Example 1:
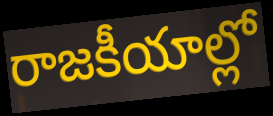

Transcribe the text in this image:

రాజకీయాల్లో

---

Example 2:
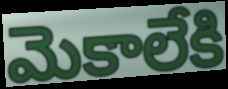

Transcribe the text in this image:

మెకాలేకి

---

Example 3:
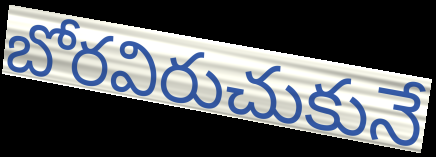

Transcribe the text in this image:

బోరవిరుచుకునే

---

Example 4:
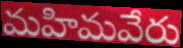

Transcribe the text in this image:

మహిమవేరు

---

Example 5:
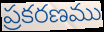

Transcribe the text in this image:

ప్రకరణము